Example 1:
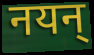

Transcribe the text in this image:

नयन्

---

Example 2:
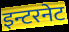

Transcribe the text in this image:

इन्टरनेट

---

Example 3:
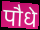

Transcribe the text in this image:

पौधे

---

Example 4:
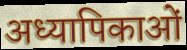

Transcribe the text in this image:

अध्यापिकाओं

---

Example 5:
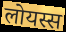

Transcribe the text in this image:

लोयस्स